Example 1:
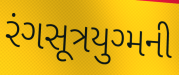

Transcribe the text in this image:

રંગસૂત્રયુગ્મની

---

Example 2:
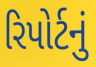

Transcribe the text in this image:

રિપોર્ટનું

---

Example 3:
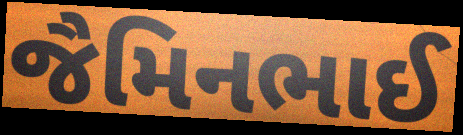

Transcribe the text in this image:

જૈમિનભાઈ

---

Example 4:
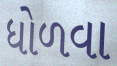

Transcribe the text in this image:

ધોળવા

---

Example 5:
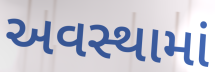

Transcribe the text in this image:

અવસ્થામાં